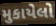
મુકાયેલો